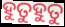
ହୁତୁହୁତୁ